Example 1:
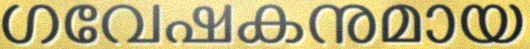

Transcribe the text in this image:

ഗവേഷകനുമായ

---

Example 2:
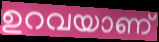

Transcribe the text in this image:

ഉറവയാണ്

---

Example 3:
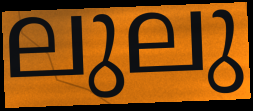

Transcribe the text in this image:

ലുലു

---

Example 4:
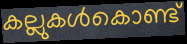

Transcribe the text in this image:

കല്ലുകൾകൊണ്ട്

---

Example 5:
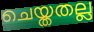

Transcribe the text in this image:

ചെയ്തതല്ല